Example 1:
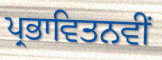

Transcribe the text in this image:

ਪ੍ਰਭਾਵਿਤਨਵੀਂ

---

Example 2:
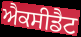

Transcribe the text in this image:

ਐਕਸੀਡੈਟ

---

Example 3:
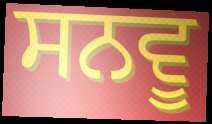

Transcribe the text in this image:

ਸਨਵੂ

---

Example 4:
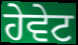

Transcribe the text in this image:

ਹੇਵੇਟ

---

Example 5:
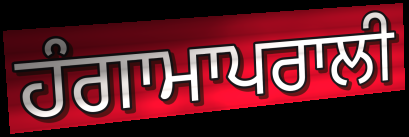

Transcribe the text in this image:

ਹੰਗਾਮਾਪਰਾਲੀ